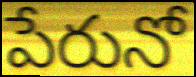
పేరునో